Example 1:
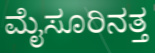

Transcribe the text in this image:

ಮೈಸೂರಿನತ್ತ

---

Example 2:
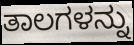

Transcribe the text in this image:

ತಾಲಗಳನ್ನು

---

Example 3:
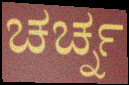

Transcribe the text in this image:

ಚರ್ಚ್ನ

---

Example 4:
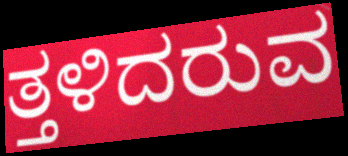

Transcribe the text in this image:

ತ್ತಳಿದರುವ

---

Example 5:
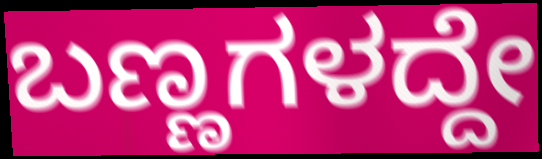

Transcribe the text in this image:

ಬಣ್ಣಗಳದ್ದೇ